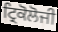
ਟ੍ਰਿਕੋਲੋਜੀ